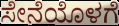
ಸೇನೆಯೊಳಗೆ